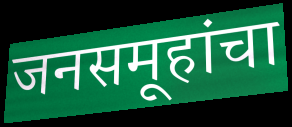
जनसमूहांचा